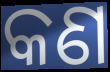
କଣ